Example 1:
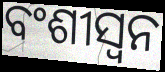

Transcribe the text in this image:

ବଂଶୀସ୍ୱନ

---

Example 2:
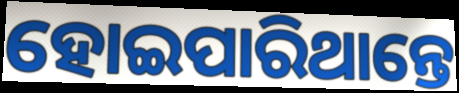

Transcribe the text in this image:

ହୋଇପାରିଥାନ୍ତେ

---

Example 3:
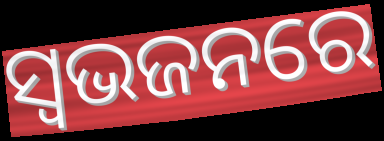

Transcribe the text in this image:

ସ୍ଵଭଜନରେ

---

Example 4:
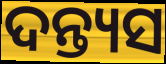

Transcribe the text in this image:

ଦନ୍ତ୍ୟସ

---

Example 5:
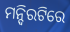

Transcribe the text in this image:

ମନ୍ଦିରଟିରେ